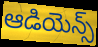
ఆడియెన్స్